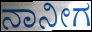
ನಾನೀಗ